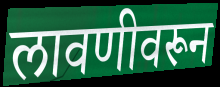
लावणीवरून